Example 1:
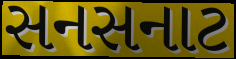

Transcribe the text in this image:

સનસનાટ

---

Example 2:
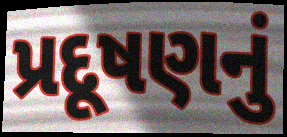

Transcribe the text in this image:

પ્રદૂષણનું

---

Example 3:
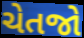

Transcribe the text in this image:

ચેતજો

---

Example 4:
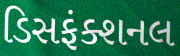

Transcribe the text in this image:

ડિસફંક્શનલ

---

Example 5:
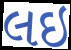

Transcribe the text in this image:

લઇ